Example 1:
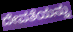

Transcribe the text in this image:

ದೇವತೆಯನ್ನು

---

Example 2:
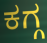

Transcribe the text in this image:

ಕಗ್ಗ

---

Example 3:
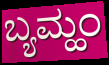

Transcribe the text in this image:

ಬ್ಯಮ್ಹಂ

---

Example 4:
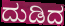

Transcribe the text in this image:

ದುಡಿದ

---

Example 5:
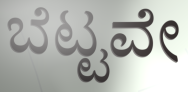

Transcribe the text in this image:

ಬೆಟ್ಟವೇ